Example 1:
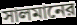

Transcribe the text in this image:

সালমানের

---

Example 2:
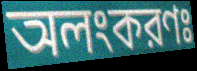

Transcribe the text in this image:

অলংকরণঃ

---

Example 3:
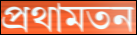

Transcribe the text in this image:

প্রথামতন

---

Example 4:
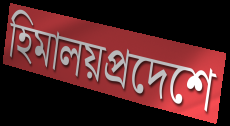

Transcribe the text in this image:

হিমালয়প্রদেশে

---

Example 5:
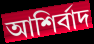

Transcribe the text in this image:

আশির্বাদ